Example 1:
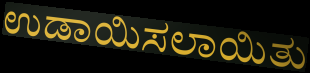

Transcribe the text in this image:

ಉಡಾಯಿಸಲಾಯಿತು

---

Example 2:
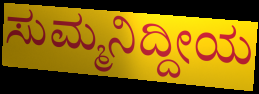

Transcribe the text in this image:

ಸುಮ್ಮನಿದ್ದೀಯ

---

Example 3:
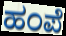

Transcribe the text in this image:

ಹಂಪೆ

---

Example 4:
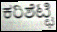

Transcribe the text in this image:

ಕರಿಶೆಟ್ಟಿ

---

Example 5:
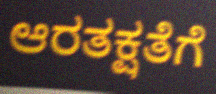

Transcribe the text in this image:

ಆರತಕ್ಷತೆಗೆ